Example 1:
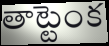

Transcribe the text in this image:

తాట్టెంక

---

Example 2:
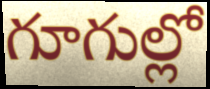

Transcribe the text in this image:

గూగుల్లో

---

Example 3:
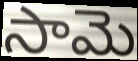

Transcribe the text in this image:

సామె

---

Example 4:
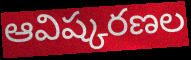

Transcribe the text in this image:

ఆవిష్కరణల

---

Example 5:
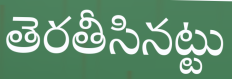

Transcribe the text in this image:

తెరతీసినట్టు